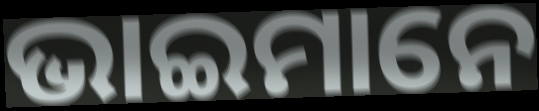
ଭାଇମାନେ